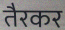
तैरकर